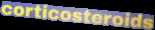
corticosteroids